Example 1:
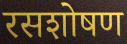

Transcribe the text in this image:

रसशोषण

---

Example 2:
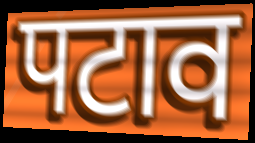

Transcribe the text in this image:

पटाव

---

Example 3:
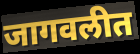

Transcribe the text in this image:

जागवलीत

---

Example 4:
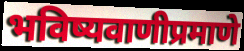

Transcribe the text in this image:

भविष्यवाणीप्रमाणे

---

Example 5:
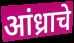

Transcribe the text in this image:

आंध्राचे